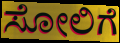
ಸೋಲಿಗೆ